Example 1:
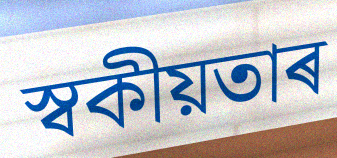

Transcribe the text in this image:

স্বকীয়তাৰ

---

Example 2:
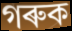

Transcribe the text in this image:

গৰুক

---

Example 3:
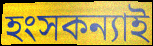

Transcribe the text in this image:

হংসকন্যাই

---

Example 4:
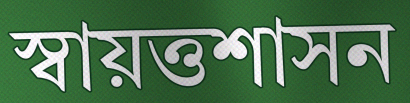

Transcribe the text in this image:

স্বায়ত্তশাসন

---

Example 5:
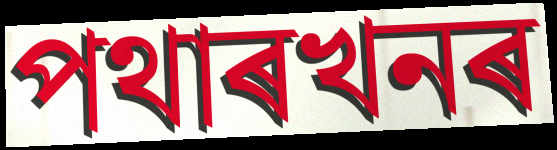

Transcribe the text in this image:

পথাৰখনৰ